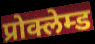
प्रोक्लेम्ड